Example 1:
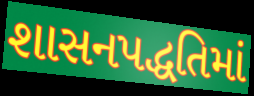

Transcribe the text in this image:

શાસનપદ્ધતિમાં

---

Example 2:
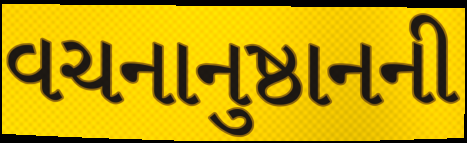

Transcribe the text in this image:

વચનાનુષ્ઠાનની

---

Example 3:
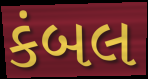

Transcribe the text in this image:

કંબલ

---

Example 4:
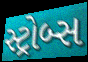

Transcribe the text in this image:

સ્ટ્રોબ્સ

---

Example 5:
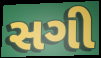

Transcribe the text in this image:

સગી